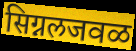
सिग्नलजवळ